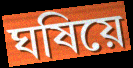
ঘষিয়ে